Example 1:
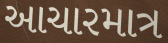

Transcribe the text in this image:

આચારમાત્ર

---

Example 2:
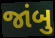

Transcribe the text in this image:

જાંબુ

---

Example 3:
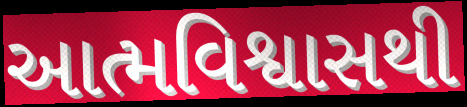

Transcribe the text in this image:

આત્મવિશ્વાસથી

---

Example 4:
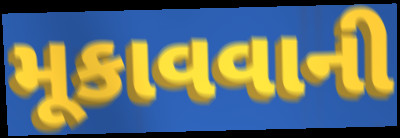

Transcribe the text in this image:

મૂકાવવાની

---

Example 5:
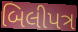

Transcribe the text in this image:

બિલીપત્ર